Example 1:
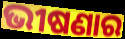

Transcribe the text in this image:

ଭୀଷଣାର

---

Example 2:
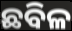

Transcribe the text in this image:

ଛବିଳ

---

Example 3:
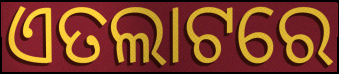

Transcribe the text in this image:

ଏତଲାଟରେ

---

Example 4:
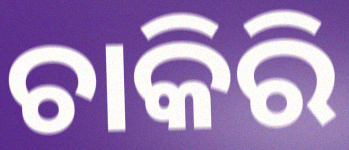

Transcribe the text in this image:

ଚାକିରି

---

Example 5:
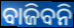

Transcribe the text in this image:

ବାଜିବନି